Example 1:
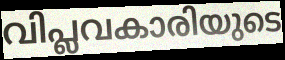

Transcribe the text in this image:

വിപ്ലവകാരിയുടെ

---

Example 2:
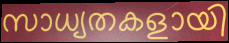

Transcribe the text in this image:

സാധ്യതകളായി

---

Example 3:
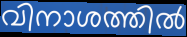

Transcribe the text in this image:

വിനാശത്തിൽ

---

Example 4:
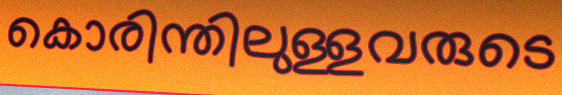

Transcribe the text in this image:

കൊരിന്തിലുള്ളവരുടെ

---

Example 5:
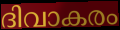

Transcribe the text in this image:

ദിവാകരം